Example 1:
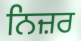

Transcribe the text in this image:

ਨਿਜ਼ਰ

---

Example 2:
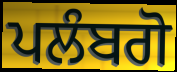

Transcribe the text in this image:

ਪਲੰਬਗੋ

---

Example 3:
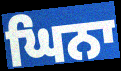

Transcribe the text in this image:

ਘਿਨਾ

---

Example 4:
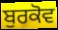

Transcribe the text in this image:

ਬੁਰਕੋਵ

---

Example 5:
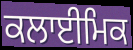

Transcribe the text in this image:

ਕਲਾਈਮਿਕ